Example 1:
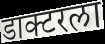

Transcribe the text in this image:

डाक्टरला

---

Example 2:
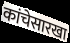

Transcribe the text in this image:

कांचेसारखा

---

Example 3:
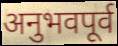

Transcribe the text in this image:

अनुभवपूर्व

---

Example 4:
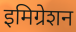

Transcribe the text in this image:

इमिग्रेशन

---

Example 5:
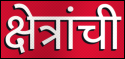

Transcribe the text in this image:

क्षेत्रांची